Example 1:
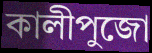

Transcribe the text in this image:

কালীপুজো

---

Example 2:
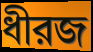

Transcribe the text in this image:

ধীরজ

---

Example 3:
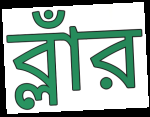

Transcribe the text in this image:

ব্লাঁর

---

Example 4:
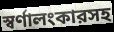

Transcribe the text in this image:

স্বর্ণালংকারসহ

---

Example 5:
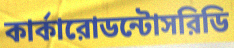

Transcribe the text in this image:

কার্কারোডন্টোসরিডি